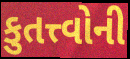
કુતત્ત્વોની